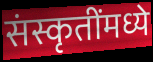
संस्कृतींमध्ये